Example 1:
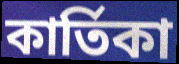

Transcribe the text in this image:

কাৰ্তিকা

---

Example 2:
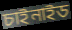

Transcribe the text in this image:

চাইনাইড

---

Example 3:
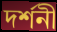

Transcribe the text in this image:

দৰ্শনী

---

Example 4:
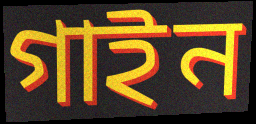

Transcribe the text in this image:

গাইন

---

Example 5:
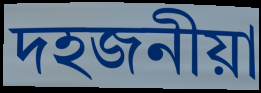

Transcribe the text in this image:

দহজনীয়া